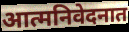
आत्मनिवेदनात